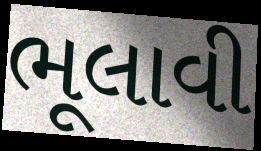
ભૂલાવી